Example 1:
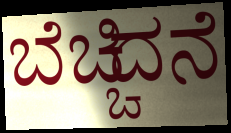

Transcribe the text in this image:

ಬೆಚ್ಚಿದನೆ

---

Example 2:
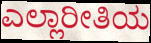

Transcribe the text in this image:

ಎಲ್ಲಾರೀತಿಯ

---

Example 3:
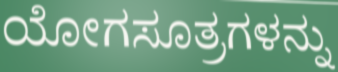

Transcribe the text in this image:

ಯೋಗಸೂತ್ರಗಳನ್ನು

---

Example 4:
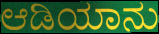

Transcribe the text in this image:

ಆಡಿಯಾನು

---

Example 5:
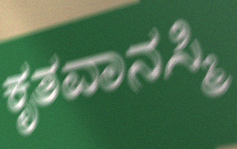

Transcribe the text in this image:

ಕೃತವಾನಸ್ಮಿ